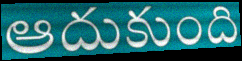
ఆదుకుంది